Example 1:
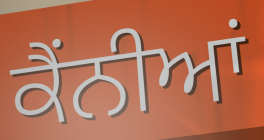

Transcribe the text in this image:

ਕੈਂਨੀਆਂ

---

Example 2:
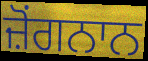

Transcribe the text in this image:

ਜ਼ੋਂਗਨਾਨ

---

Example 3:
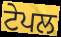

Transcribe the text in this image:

ਟੇਪਲ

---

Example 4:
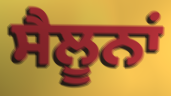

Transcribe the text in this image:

ਸੈਲੂਨਾਂ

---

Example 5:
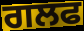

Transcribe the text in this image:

ਗਲਫ